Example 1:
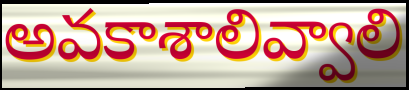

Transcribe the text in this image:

అవకాశాలివ్వాలి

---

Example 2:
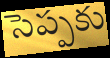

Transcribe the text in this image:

సెప్పకు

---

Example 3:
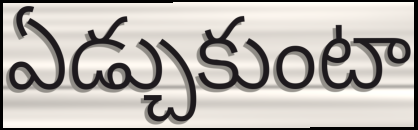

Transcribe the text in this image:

ఏడ్చుకుంటా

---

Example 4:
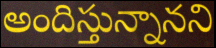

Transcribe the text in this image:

అందిస్తున్నానని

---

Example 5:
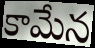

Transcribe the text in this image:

కామేన